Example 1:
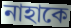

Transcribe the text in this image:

নাহাকে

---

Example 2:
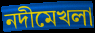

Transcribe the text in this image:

নদীমেখলা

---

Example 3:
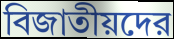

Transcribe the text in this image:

বিজাতীয়দের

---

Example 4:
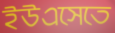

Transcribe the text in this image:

ইউএসেতে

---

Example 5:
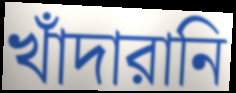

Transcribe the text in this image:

খাঁদারানি